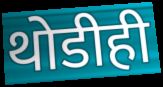
थोडीही